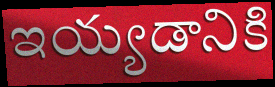
ఇయ్యడానికి